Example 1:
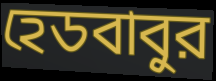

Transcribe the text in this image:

হেডবাবুর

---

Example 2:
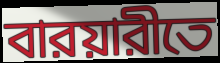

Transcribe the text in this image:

বারয়ারীতে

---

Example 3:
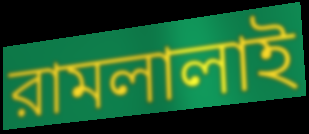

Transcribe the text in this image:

রামলালাই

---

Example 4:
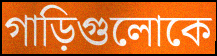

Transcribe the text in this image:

গাড়িগুলোকে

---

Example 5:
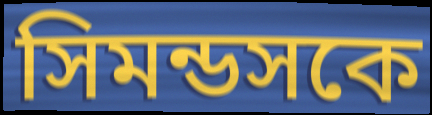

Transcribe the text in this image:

সিমন্ডসকে